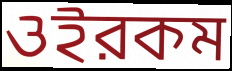
ওইরকম